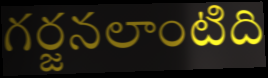
గర్జనలాంటిది